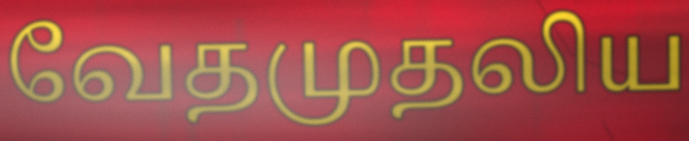
வேதமுதலிய